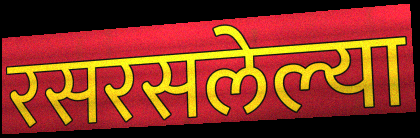
रसरसलेल्या